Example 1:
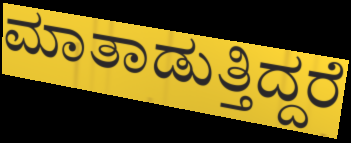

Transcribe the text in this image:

ಮಾತಾಡುತ್ತಿದ್ದರೆ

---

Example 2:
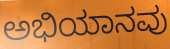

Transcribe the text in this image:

ಅಭಿಯಾನವು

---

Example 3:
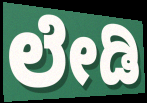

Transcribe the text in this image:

ಲೇಡಿ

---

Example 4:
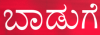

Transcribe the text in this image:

ಬಾಡುಗೆ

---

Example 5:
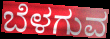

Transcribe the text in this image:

ಬೆಳಗುವ